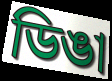
ডিঙা